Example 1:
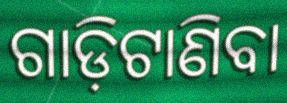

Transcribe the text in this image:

ଗାଡ଼ିଟାଣିବା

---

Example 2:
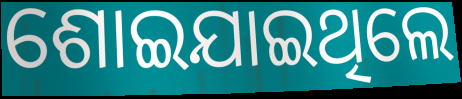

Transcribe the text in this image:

ଶୋଇଯାଇଥିଲେ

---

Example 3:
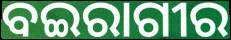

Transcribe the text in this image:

ବଇରାଗୀର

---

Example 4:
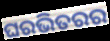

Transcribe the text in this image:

ଘରଭିତରର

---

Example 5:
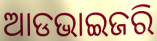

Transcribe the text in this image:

ଆଡଭାଇଜରି